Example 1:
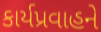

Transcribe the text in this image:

કાર્યપ્રવાહને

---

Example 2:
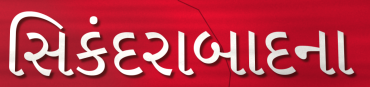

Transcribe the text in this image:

સિકંદરાબાદના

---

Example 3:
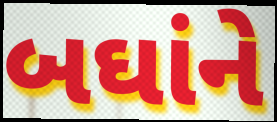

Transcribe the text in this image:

બઘાંને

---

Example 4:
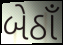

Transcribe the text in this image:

બેઠાઁ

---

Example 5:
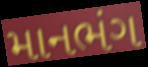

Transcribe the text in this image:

માનભંગ